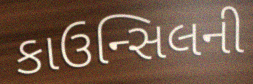
કાઉન્સિલની